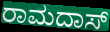
ರಾಮದಾಸ್